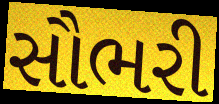
સૌભરી